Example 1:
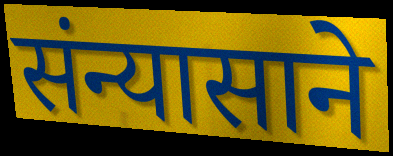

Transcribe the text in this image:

संन्यासाने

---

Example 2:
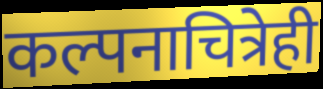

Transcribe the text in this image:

कल्पनाचित्रेही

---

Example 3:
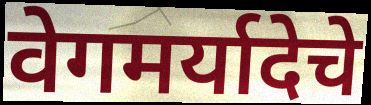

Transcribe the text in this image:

वेगमर्यादेचे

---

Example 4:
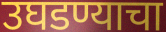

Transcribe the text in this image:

उघडण्याचा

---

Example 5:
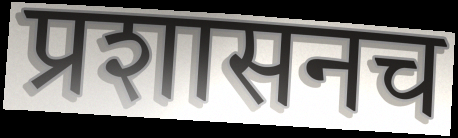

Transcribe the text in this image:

प्रशासनच